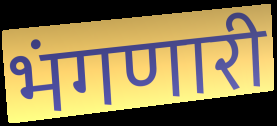
भंगणारी